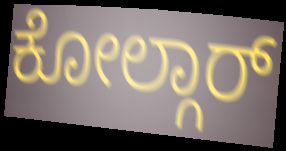
ಕೋಲ್ಗಾರ್